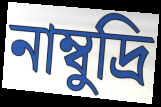
নাম্বুদ্রি